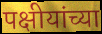
पक्षीयांच्या